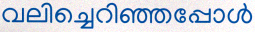
വലിച്ചെറിഞ്ഞപ്പോൾ